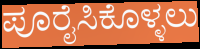
ಪೂರೈಸಿಕೊಳ್ಳಲು